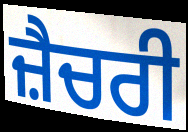
ਜ਼ੈਚਰੀ